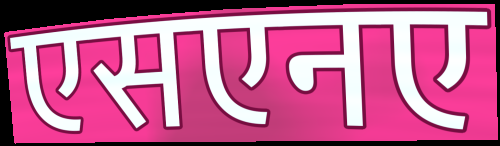
एसएनए